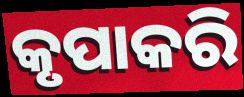
କୃପାକରି